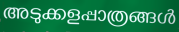
അടുക്കളപ്പാത്രങ്ങൾ